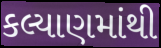
કલ્યાણમાંથી